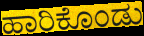
ಹಾರಿಕೊಂಡು